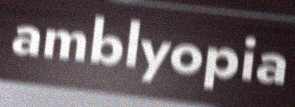
amblyopia